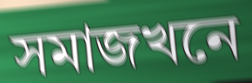
সমাজখনে